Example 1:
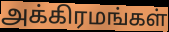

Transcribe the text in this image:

அக்கிரமங்கள்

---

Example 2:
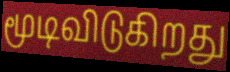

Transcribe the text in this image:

மூடிவிடுகிறது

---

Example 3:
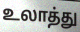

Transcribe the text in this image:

உலாத்து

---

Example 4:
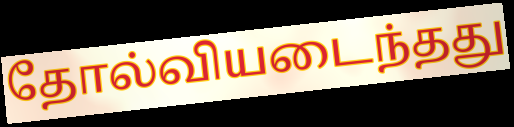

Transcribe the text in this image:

தோல்வியடைந்தது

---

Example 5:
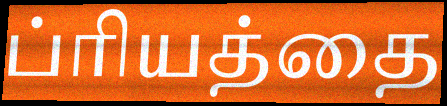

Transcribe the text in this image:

ப்ரியத்தை